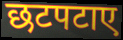
छटपटाए